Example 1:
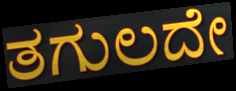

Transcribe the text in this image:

ತಗುಲದೇ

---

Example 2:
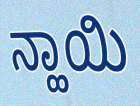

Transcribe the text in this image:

ನ್ಹಾಯಿ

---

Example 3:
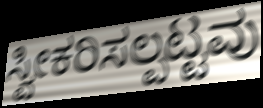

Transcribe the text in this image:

ಸ್ವೀಕರಿಸಲ್ಪಟ್ಟವು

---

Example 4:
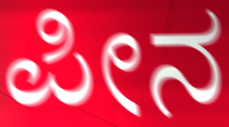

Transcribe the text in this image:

ಪೀನ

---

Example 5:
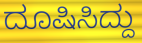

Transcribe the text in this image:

ದೂಷಿಸಿದ್ದು